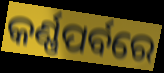
କର୍ଣ୍ଣପର୍ବରେ